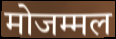
मोजम्मल